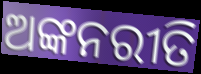
ଅଙ୍କନରୀତି